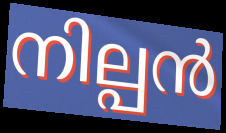
നില്പൻ